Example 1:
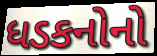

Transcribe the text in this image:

ધડકનોનો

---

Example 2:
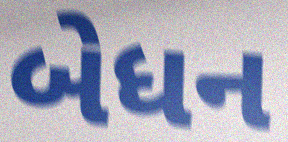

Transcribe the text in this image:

બેધન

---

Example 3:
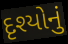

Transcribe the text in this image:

દૃશ્યોનું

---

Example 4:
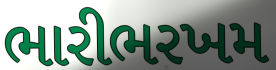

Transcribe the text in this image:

ભારીભરખમ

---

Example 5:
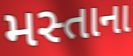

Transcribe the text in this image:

મસ્તાના